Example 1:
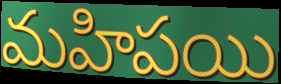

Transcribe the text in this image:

మహిపయి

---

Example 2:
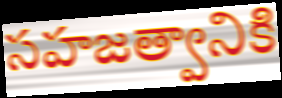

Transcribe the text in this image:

సహజత్వానికి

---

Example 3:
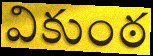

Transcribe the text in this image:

వికుంఠ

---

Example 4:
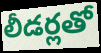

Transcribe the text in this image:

లీడర్లతో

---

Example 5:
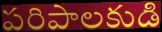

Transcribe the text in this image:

పరిపాలకుడి